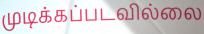
முடிக்கப்படவில்லை